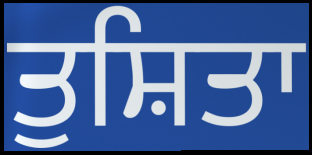
ਤੁਸ਼ਿਤਾ